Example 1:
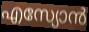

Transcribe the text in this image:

എസ്യോൻ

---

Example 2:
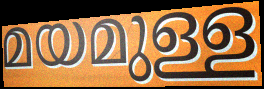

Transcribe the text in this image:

മയമുള്ള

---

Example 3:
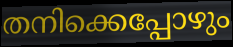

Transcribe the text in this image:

തനിക്കെപ്പോഴും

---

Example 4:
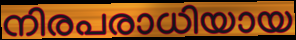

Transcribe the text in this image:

നിരപരാധിയായ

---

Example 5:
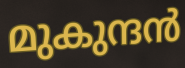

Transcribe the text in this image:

മുകുന്ദൻ